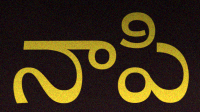
నాపి